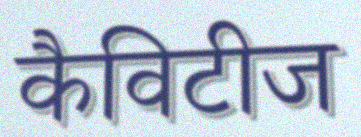
कैविटीज